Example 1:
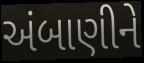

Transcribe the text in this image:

અંબાણીને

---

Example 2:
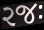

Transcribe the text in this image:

રજઃ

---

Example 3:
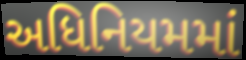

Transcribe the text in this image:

અધિનિયમમાં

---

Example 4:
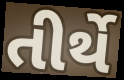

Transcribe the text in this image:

તીર્થે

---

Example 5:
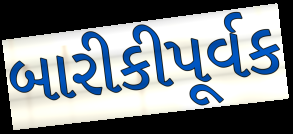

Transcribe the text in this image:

બારીકીપૂર્વક